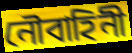
নৌবাহিনী